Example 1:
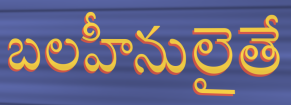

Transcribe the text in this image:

బలహీనులైతే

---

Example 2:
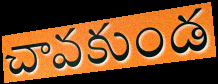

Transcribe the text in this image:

చావకుండ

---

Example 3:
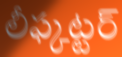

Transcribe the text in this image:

లీఫ్కట్టర్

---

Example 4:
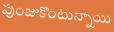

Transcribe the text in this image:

పుంజుకొంటున్నాయి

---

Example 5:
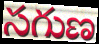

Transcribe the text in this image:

సగుణ